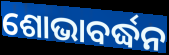
ଶୋଭାବର୍ଦ୍ଧନ